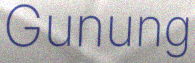
Gunung